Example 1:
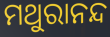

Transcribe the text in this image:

ମଥୁରାନନ୍ଦ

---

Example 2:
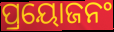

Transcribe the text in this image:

ପ୍ରୟୋଜନଂ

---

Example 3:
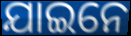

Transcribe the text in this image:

ଯାଇନେ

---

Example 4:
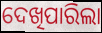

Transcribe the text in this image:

ଦେଖିପାରିଲା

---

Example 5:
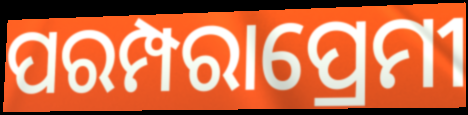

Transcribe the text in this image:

ପରମ୍ପରାପ୍ରେମୀ